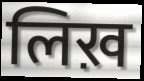
लिख़